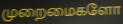
முறைமைகளோ